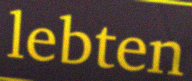
lebten